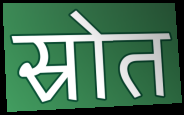
स्रोत